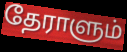
தேராளும்